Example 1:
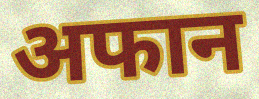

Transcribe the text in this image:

अफान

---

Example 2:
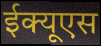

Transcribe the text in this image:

ईक्यूएस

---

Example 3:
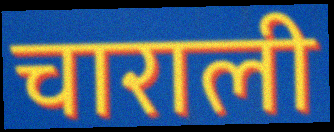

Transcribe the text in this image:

चाराली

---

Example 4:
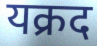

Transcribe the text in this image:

यक्रद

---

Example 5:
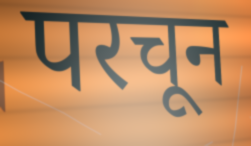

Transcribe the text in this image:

परचून